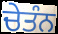
ਚੇਤੰਨ